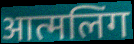
आत्मलिंग